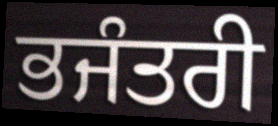
ਭਜੰਤਰੀ